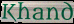
Khand